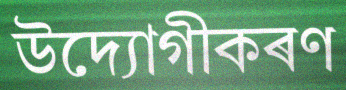
উদ্যোগীকৰণ